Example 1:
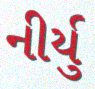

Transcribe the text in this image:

નીર્યુ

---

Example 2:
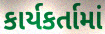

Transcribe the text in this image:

કાર્યકર્તામાં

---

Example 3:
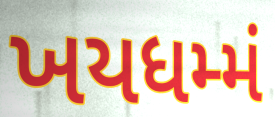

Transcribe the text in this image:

ખયધમ્મં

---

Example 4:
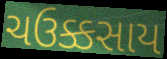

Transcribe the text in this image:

ચઉક્કસાય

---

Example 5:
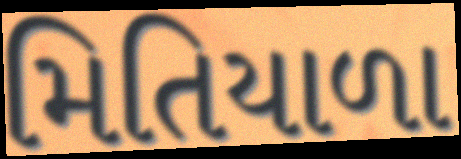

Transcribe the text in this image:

મિતિયાળા